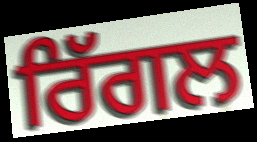
ਰਿੱਗਲ